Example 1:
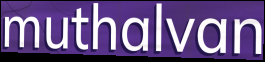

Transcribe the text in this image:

muthalvan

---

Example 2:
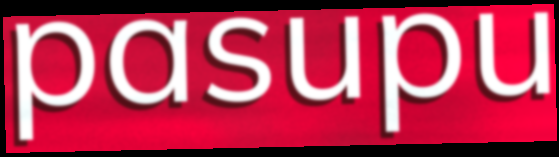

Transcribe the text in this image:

pasupu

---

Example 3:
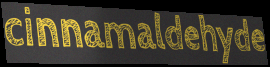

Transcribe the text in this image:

cinnamaldehyde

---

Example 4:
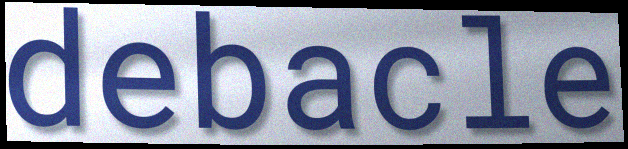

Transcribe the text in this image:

debacle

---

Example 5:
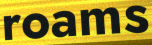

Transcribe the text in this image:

roams